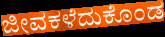
ಜೀವಕಳೆದುಕೊಂಡ